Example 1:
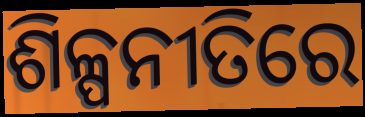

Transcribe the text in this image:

ଶିଳ୍ପନୀତିରେ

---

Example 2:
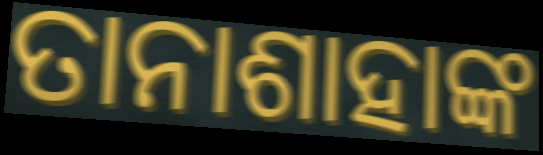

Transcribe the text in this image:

ତାନାଶାହାଙ୍କ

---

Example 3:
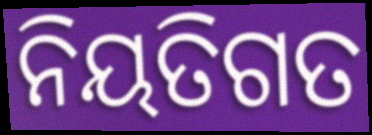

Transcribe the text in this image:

ନିୟତିଗତ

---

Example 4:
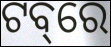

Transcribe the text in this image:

ଟବ୍‌ରେ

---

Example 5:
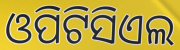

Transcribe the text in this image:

ଓପିଟିସିଏଲ